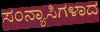
ಸಂನ್ಯಾಸಿಗಳಾದ